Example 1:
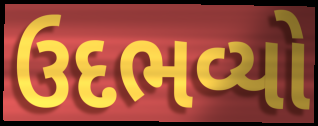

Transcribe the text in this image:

ઉદભવ્યો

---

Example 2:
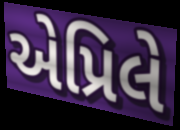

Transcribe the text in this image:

એપ્રિલે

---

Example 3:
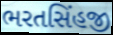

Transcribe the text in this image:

ભરતસિંહજી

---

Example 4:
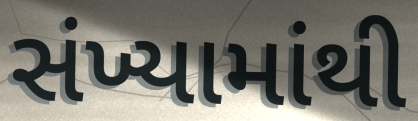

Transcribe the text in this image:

સંખ્યામાંથી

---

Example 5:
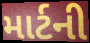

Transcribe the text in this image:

માર્ટની